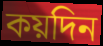
কয়দিন